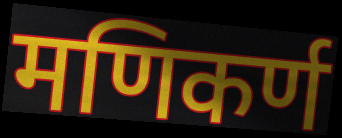
मणिकर्ण